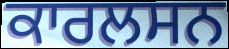
ਕਾਰਲਸਨ